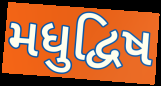
મધુદ્વિષ